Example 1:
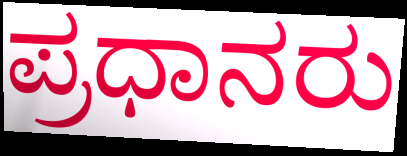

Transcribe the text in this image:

ಪ್ರಧಾನರು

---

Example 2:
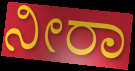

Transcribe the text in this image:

ನೀರಾ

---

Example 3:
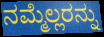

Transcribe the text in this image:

ನಮ್ಮೆಲ್ಲರನ್ನು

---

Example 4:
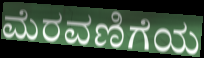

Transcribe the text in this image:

ಮೆರವಣಿಗೆಯ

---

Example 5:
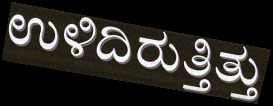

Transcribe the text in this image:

ಉಳಿದಿರುತ್ತಿತ್ತು